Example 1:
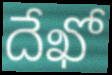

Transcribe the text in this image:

దేఖో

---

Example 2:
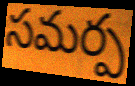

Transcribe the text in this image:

సమర్ప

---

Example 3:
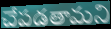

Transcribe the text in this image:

చేపడతామని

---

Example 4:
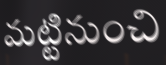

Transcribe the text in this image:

మట్టినుంచి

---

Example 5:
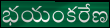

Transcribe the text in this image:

భయంకరేణ